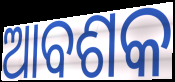
ଆବଶକ